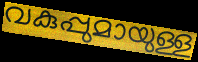
വകുപ്പുമായുള്ള